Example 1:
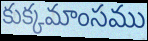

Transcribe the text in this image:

కుక్కమాంసము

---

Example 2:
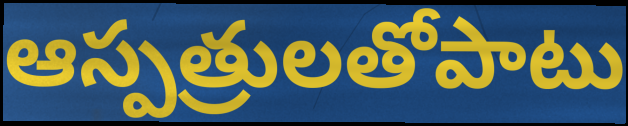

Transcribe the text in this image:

ఆస్పత్రులతోపాటు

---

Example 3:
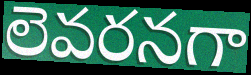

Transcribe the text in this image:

లెవరనగా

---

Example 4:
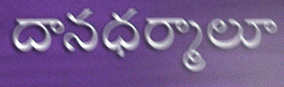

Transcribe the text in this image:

దానధర్మాలూ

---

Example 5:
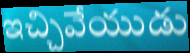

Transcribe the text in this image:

ఇచ్చివేయుడు